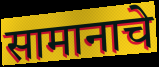
सामानाचे